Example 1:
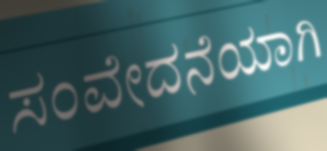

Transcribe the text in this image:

ಸಂವೇದನೆಯಾಗಿ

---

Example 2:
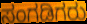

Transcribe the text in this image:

ಸಂಗಡಿಗರು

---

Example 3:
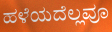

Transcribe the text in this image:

ಹಳೆಯದೆಲ್ಲವೂ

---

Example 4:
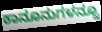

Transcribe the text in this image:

ಕಾನೂನುಗಳನ್ನೂ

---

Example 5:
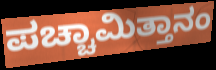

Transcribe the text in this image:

ಪಚ್ಚಾಮಿತ್ತಾನಂ